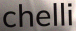
chelli